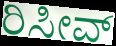
ರಿಸೀವ್